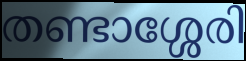
തണ്ടാശ്ശേരി